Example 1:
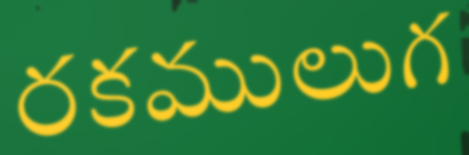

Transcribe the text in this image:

రకములుగ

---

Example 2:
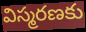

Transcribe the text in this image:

విస్మరణకు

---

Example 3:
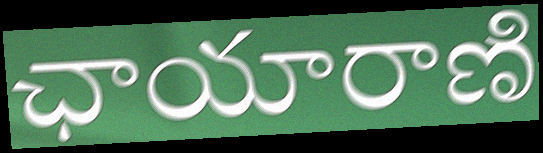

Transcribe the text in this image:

ఛాయారాణి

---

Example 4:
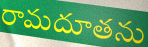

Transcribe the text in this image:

రామదూతను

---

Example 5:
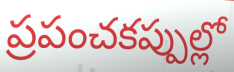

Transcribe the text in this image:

ప్రపంచకప్పుల్లో